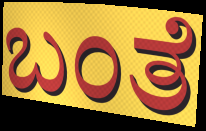
ಬಂತೆ